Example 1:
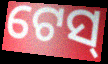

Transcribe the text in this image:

ଟେସ୍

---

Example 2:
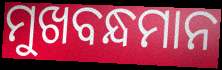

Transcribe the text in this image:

ମୁଖବନ୍ଧମାନ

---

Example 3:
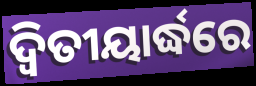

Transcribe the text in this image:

ଦ୍ଵିତୀୟାର୍ଦ୍ଧରେ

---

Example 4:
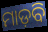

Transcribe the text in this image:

ମାଡ଼ବି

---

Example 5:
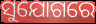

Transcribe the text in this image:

ସୁଯୋଗରେ